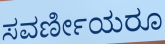
ಸವರ್ಣೀಯರೂ